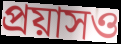
প্রয়াসও